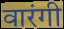
वारंगी